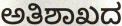
ಅತಿಶಾಖದ